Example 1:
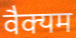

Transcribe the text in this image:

वैक्यम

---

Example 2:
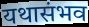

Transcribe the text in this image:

यथासंभव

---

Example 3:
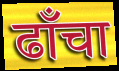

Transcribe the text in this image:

ढाँचा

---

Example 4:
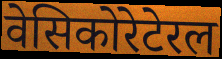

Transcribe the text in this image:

वेसिकोरेटेरल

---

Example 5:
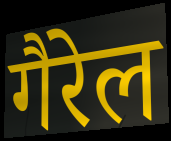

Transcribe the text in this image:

गैरेल